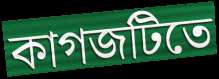
কাগজটিতে